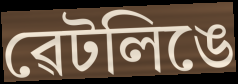
ৱেটলিঙে